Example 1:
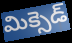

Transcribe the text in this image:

మిక్సెడ్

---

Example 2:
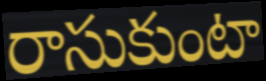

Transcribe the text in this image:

రాసుకుంటా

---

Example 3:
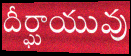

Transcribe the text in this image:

దీర్ఘాయువు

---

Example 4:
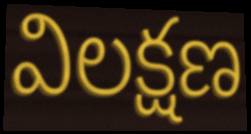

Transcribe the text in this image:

విలక్షణ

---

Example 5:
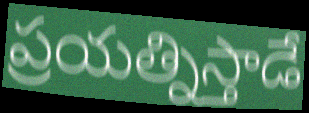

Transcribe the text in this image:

ప్రయత్నిస్తాడే